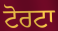
ਟੋਰਟਾ